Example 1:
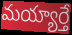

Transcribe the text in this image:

మయ్యార్తే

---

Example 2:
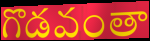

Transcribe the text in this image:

గొడవంతా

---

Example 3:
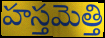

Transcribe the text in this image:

హస్తమెత్తి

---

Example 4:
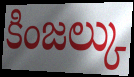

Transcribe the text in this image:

కింజల్కు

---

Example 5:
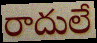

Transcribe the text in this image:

రాదులే